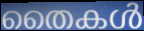
തൈകൾ